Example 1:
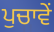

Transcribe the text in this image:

ਪੁਚਾਵੇਂ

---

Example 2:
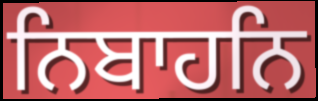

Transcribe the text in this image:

ਨਿਬਾਹਨਿ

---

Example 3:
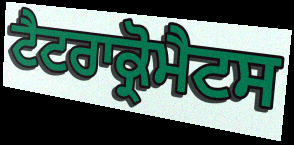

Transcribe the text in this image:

ਟੈਟਰਾਕ੍ਰੋਮੈਟਸ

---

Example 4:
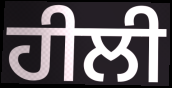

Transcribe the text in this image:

ਹੀਲੀ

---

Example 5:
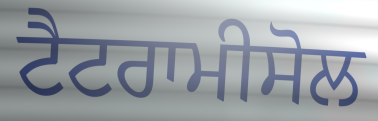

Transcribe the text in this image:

ਟੈਟਰਾਮੀਸੋਲ